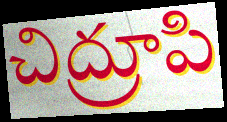
చిద్రూపి